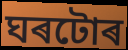
ঘৰটোৰ